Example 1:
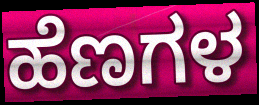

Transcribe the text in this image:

ಹೆಣಗಳ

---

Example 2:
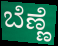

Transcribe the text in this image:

ಬೆಣ್ಣೆ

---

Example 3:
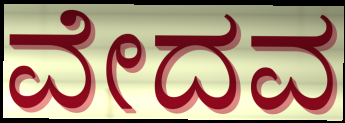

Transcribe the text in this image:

ವೇದವ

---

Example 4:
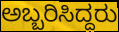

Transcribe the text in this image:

ಅಬ್ಬರಿಸಿದ್ದರು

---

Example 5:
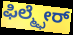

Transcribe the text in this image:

ಫಿಲ್ಮ್ಫೇರ್